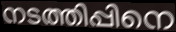
നടത്തിപ്പിനെ